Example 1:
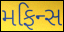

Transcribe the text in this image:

મફિન્સ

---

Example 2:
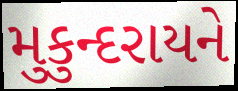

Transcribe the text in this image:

મુકુન્દરાયને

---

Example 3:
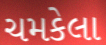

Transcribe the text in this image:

ચમકેલા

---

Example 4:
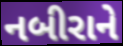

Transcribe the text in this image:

નબીરાને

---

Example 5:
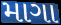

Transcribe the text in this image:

માગા